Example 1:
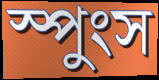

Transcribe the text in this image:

স্পুংস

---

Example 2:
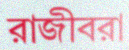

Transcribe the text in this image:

রাজীবরা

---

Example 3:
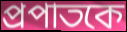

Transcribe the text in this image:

প্রপাতকে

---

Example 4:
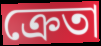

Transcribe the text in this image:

ক্রেতা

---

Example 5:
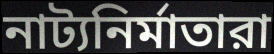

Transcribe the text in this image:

নাট্যনির্মাতারা